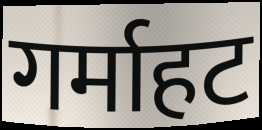
गर्माहट